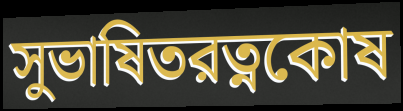
সুভাষিতরত্নকোষ